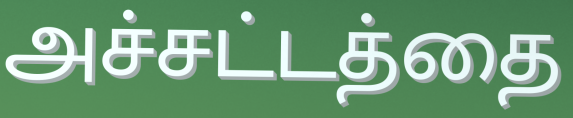
அச்சட்டத்தை